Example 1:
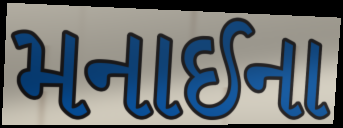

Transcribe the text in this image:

મનાઈના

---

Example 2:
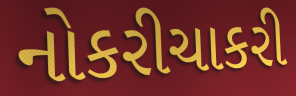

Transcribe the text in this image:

નોકરીચાકરી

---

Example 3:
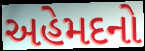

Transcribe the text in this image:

અહેમદનો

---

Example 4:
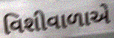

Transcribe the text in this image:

વિશીવાળાએ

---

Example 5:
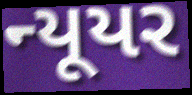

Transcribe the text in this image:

ન્યૂયર